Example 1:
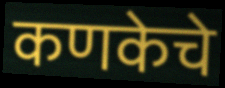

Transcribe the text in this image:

कणकेचे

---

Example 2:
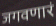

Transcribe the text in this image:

जगवणारं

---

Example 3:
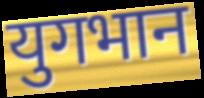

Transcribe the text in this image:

युगभान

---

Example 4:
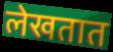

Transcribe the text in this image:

लेखतात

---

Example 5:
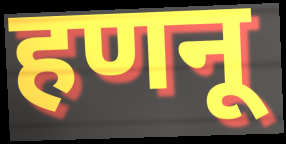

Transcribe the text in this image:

हणनू